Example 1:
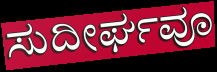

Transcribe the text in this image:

ಸುದೀರ್ಘವೂ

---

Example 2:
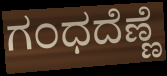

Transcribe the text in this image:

ಗಂಧದೆಣ್ಣೆ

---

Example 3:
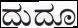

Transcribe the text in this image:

ದುದೂ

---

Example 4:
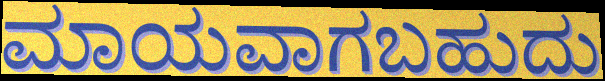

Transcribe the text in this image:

ಮಾಯವಾಗಬಹುದು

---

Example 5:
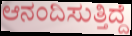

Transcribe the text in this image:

ಆನಂದಿಸುತ್ತಿದ್ದೆ